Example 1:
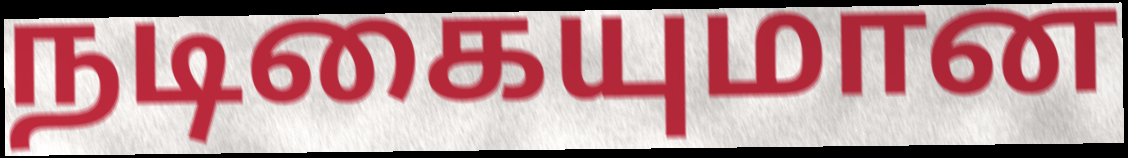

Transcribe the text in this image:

நடிகையுமான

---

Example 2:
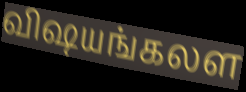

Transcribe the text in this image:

விஷயங்கலள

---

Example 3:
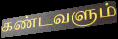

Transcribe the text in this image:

கண்டவளும்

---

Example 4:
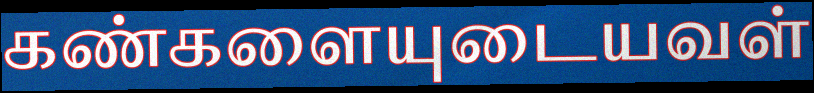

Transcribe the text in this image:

கண்களையுடையவள்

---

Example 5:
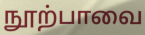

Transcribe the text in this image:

நூற்பாவை